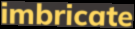
imbricate